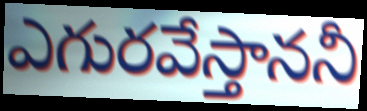
ఎగురవేస్తాననీ